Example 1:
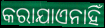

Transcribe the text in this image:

କରାଯାଏନାହିଁ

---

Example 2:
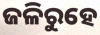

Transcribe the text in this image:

ଜଳିରୁହେ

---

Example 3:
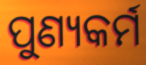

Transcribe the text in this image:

ପୁଣ୍ୟକର୍ମ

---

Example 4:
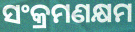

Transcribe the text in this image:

ସଂକ୍ରମଣକ୍ଷମ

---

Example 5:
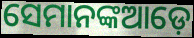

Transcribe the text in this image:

ସେମାନଙ୍କଆଡ଼େ